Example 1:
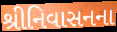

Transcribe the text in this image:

શ્રીનિવાસનના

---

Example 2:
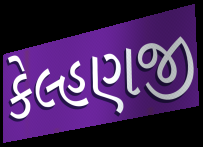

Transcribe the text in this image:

કેલ્હણજી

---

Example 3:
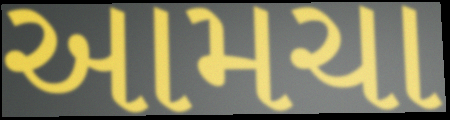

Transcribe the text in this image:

આમચા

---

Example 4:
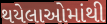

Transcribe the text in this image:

થયેલાઓમાંથી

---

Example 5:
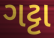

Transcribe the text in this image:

ગટ્ટા